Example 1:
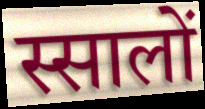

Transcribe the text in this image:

स्सालों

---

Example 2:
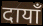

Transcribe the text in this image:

दायाँ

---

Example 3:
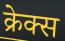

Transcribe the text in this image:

क्रेक्स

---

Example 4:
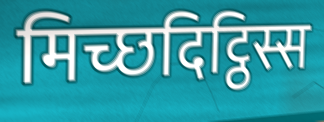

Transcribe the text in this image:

मिच्छदिट्ठिस्स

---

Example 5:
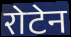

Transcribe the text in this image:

रोटेन